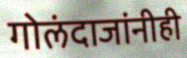
गोलंदाजांनीही